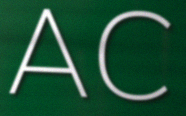
AC